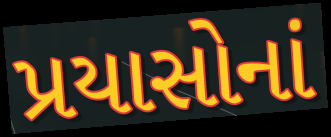
પ્રયાસોનાં